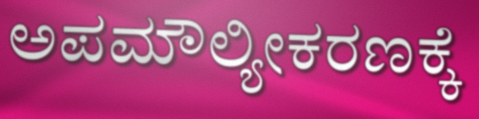
ಅಪಮೌಲ್ಯೀಕರಣಕ್ಕೆ